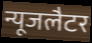
न्यूजलैटर